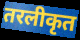
तरलीकृत